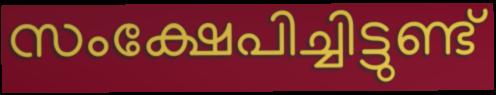
സംക്ഷേപിച്ചിട്ടുണ്ട്